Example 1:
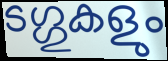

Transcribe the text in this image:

ടഗ്ഗുകളും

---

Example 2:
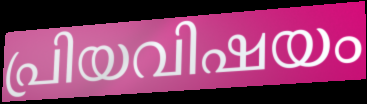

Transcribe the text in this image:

പ്രിയവിഷയം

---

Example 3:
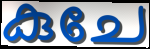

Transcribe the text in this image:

കുചേ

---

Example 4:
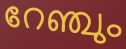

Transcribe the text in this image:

റേഞ്ചും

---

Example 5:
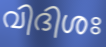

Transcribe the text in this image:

വിദിശഃ